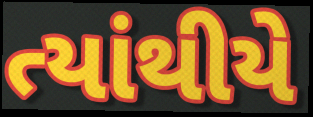
ત્યાંથીયે